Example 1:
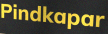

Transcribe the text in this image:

Pindkapar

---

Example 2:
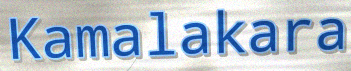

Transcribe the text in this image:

Kamalakara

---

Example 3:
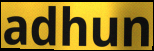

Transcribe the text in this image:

adhun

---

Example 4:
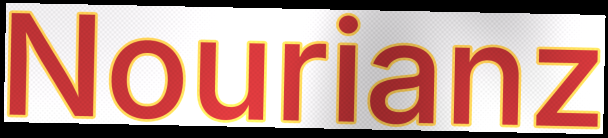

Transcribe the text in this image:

Nourianz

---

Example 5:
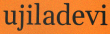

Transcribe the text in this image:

ujiladevi